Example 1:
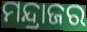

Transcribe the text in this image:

ମନ୍ଦ୍ରାଜର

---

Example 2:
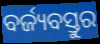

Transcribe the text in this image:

ବର୍ଜ୍ୟବସ୍ତୁର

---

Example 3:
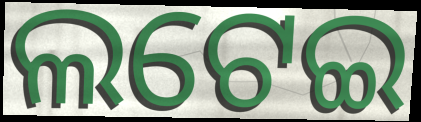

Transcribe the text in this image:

ଲଟେଇ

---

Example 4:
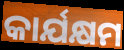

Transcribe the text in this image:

କାର୍ଯକ୍ଷମ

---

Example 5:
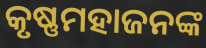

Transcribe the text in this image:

କୃଷ୍ଣମହାଜନଙ୍କ